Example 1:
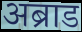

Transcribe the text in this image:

अब्राड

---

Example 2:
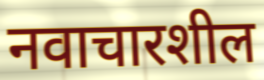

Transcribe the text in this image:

नवाचारशील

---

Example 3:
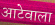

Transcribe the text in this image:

आटेवाला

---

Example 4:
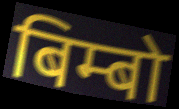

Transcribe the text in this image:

बिम्बो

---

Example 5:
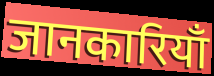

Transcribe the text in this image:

जानकारियाँ